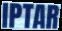
IPTAR